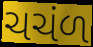
ચચંળ